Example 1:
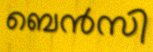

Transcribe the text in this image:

ബെൻസി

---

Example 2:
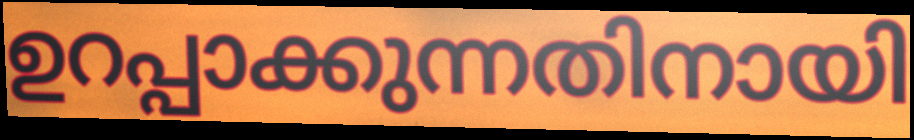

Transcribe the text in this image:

ഉറപ്പാക്കുന്നതിനായി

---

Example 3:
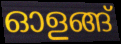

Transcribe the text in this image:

ഓളങ്ങ്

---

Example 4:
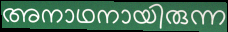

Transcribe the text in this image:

അനാഥനായിരുന്ന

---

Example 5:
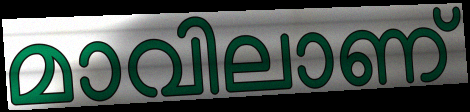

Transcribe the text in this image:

മാവിലാണ്